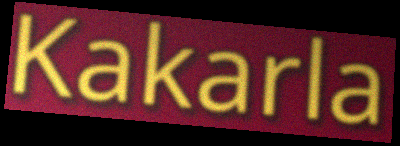
Kakarla